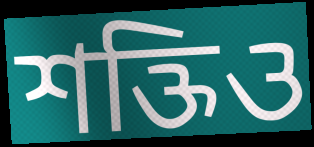
শক্তিও